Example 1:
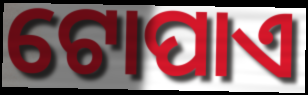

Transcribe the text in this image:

ଟୋପାଏ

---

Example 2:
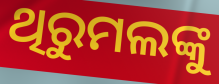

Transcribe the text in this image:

ଥିରୁମଲଙ୍କୁ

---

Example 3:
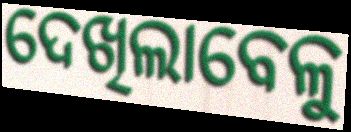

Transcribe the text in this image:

ଦେଖିଲାବେଳୁ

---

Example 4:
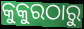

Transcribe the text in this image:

କୁକୁରଠାରୁ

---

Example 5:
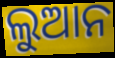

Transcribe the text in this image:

ଲୁଆନ